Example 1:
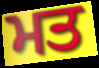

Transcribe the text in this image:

ਮਤ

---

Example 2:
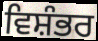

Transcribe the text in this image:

ਵਿਸ਼ੰਭਰ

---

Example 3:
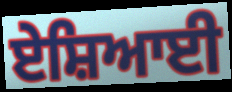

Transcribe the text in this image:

ਏਸ਼ਿਆਈ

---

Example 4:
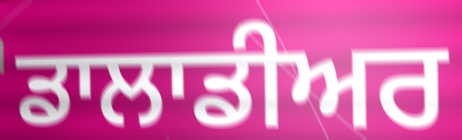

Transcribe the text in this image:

ਡਾਲਾਡੀਅਰ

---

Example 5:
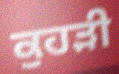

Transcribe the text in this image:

ਕੁਹੜੀ